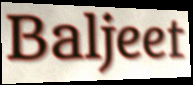
Baljeet